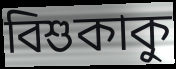
বিশুকাকু